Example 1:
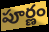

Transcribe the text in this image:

పూర్ణం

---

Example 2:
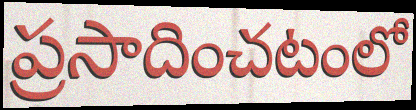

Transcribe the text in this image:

ప్రసాదించటంలో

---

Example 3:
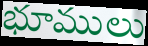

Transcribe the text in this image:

భూములు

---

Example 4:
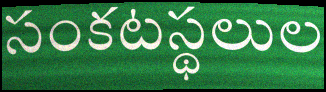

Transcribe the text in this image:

సంకటస్థలుల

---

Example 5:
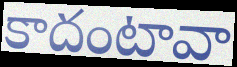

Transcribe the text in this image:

కాదంటావా